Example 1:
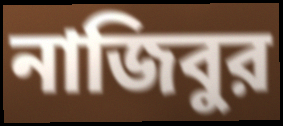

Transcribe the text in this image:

নাজিবুর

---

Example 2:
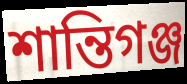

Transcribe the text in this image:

শান্তিগঞ্জ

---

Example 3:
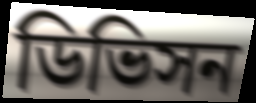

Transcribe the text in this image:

ডিভিসন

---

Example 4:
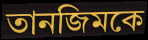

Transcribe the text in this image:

তানজিমকে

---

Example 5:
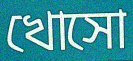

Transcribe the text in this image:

খোসো